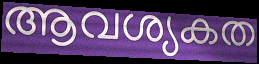
ആവശ്യകത